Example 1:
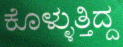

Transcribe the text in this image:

ಕೊಳ್ಳುತ್ತಿದ್ದ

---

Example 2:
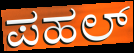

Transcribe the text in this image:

ಪಹಲ್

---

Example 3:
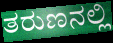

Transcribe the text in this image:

ತರುಣನಲ್ಲಿ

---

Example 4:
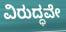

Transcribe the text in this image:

ವಿರುದ್ಧವೇ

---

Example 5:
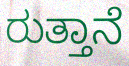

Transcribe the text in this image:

ರುತ್ತಾನೆ